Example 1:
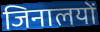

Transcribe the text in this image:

जिनालयों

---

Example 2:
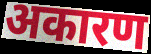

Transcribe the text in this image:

अकारण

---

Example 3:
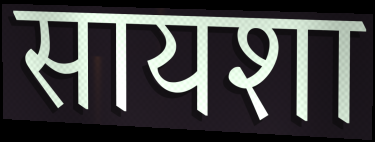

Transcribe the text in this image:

सायशा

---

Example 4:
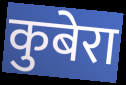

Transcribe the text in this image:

कुबेरा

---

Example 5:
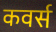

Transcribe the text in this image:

कवर्स